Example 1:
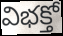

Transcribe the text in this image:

విభక్తో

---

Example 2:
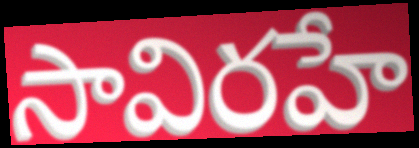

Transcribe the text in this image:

సావిరహే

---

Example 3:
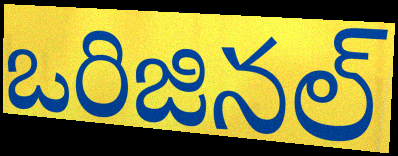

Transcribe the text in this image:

ఒరిజినల్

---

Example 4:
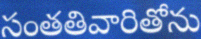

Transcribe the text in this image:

సంతతివారితోను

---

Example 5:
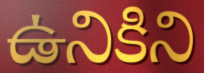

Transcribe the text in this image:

ఉనికిని